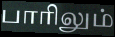
பாரிலும்